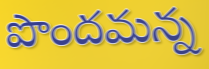
పొందమన్న